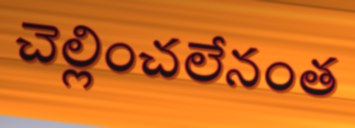
చెల్లించలేనంత